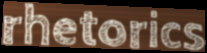
rhetorics